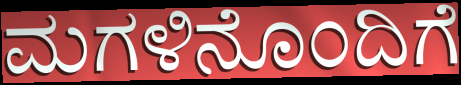
ಮಗಳಿನೊಂದಿಗೆ